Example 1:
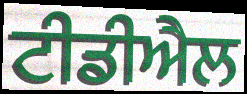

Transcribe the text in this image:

ਟੀਡੀਐਲ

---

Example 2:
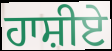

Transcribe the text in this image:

ਹਾਸ਼ੀਏ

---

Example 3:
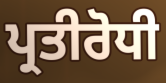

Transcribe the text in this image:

ਪ੍ਰਤੀਰੋਧੀ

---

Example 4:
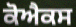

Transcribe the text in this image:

ਕੋਐਕਸ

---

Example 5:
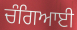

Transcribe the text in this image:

ਚੰਗਿਆਈ